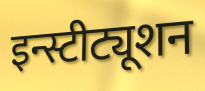
इन्स्टीट्यूशन